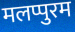
मलप्पुरम